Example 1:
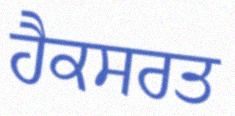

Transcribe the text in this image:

ਹੈਕਸਰਤ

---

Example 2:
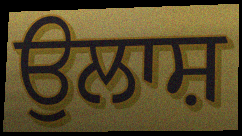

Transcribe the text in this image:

ਉਲਾਸ਼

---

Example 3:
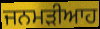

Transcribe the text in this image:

ਜਨਮੜੀਆਹ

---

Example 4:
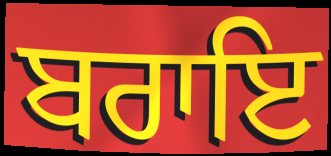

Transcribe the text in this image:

ਬਰਾਇ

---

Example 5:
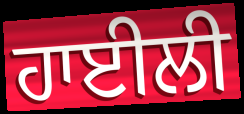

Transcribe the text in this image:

ਹਾਈਲੀ